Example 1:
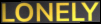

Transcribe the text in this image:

LONELY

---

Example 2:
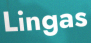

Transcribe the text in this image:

Lingas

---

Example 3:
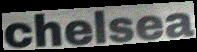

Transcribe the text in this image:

chelsea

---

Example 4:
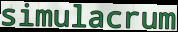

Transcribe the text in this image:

simulacrum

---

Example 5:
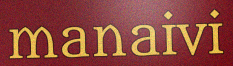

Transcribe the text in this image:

manaivi